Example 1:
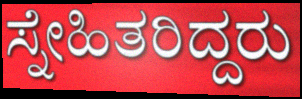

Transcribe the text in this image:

ಸ್ನೇಹಿತರಿದ್ದರು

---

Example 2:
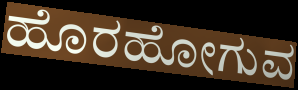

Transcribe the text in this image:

ಹೊರಹೋಗುವ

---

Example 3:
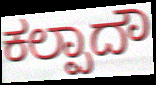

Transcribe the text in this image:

ಕಲ್ಪಾದೌ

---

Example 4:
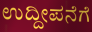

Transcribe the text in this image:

ಉದ್ದೀಪನೆಗೆ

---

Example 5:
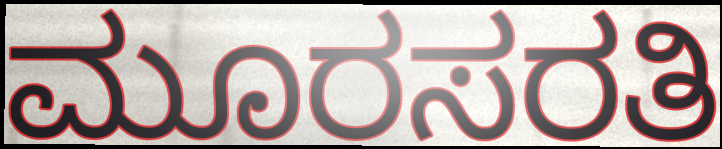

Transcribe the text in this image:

ಮೂರಸರತಿ